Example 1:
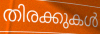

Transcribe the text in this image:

തിരക്കുകൾ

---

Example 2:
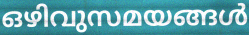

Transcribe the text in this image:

ഒഴിവുസമയങ്ങൾ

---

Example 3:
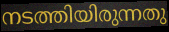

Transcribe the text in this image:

നടത്തിയിരുന്നതു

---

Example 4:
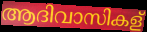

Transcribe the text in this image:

ആദിവാസികള്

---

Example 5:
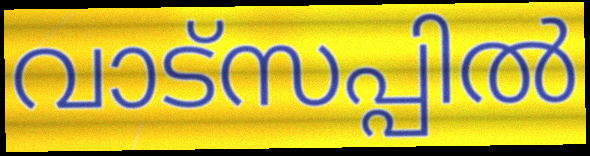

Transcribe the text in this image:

വാട്സപ്പിൽ